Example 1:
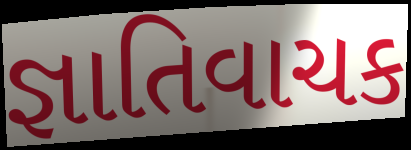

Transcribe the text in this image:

જ્ઞાતિવાચક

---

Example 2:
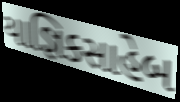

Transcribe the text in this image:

યાજ્ઞિકસાહેબ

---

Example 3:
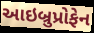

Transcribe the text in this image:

આઇબ્રુપ્રોફેન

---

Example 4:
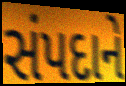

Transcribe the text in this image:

સંપદાને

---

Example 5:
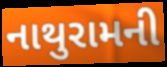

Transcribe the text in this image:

નાથુરામની